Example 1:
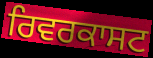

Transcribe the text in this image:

ਰਿਵਰਕਾਸਟ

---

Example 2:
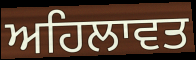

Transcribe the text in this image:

ਅਹਿਲਾਵਤ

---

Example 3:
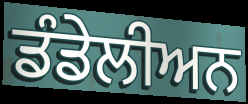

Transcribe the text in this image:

ਡੰਡੇਲੀਅਨ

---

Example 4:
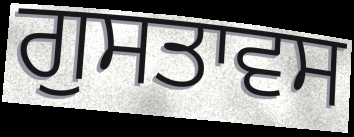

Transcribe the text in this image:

ਗੁਸਤਾਵਸ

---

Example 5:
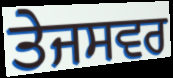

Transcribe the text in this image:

ਤੇਜਸਵਰ